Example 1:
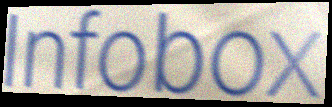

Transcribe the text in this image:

Infobox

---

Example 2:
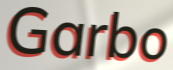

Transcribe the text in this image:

Garbo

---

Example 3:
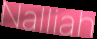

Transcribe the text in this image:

Nalliah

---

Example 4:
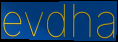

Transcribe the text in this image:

evdha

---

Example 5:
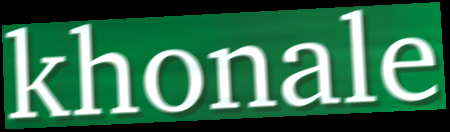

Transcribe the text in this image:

khonale